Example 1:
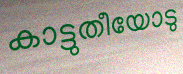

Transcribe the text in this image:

കാട്ടുതീയോടു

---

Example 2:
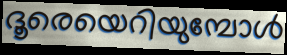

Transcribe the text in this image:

ദൂരെയെറിയുമ്പോൾ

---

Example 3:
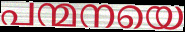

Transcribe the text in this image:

പന്മനയെ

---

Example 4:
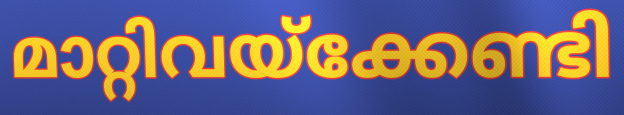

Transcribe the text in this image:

മാറ്റിവയ്ക്കേണ്ടി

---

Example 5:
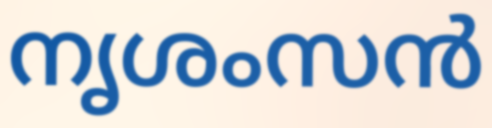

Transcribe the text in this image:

നൃശംസൻ